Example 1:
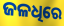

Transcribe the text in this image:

ଜଳଧିରେ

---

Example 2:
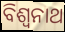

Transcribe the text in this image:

ବିଶ୍ଵନାଥ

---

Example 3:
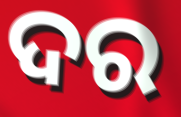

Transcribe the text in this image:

ଦର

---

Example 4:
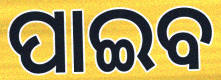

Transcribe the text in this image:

ପାଇବ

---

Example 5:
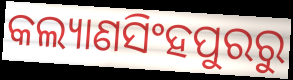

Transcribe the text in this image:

କଲ୍ୟାଣସିଂହପୁରରୁ